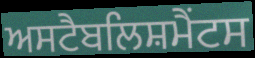
ਅਸਟੈਬਲਿਸ਼ਮੈਂਟਸ